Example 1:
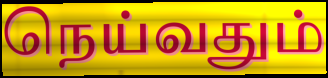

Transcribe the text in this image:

நெய்வதும்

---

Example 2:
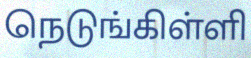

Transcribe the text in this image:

நெடுங்கிள்ளி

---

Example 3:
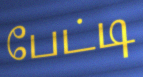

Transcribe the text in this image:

பேட்டி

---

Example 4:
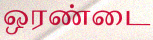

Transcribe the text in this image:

ஒரண்டை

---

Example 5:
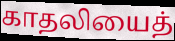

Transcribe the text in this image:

காதலியைத்